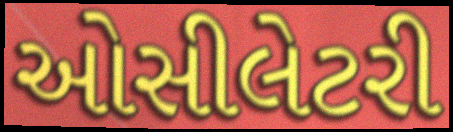
ઓસીલેટરી